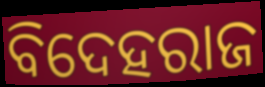
ବିଦେହରାଜ